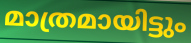
മാത്രമായിട്ടും